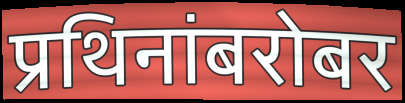
प्रथिनांबरोबर